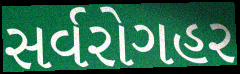
સર્વરોગહર